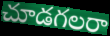
చూడగలరా